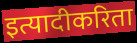
इत्यादीकरिता